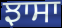
ਝਾਸਾ